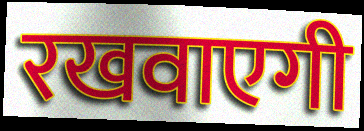
रखवाएगी